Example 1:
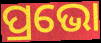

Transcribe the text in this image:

ପ୍ରଭୋ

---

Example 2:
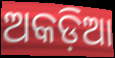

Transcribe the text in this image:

ଅକଡ଼ିଆ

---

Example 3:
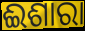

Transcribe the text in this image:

ଈଶାରା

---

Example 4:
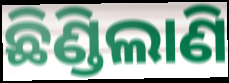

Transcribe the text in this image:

ଛିଣ୍ଡିଲାଣି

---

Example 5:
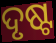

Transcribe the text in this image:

ଦୃଷ୍ଟ